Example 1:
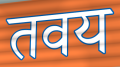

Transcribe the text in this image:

तवय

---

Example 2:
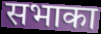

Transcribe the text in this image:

सभाका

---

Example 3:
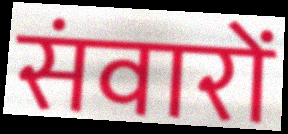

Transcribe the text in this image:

संवारों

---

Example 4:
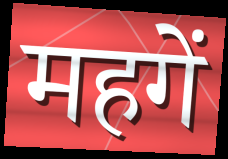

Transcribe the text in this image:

महगें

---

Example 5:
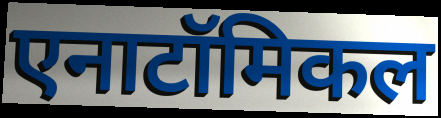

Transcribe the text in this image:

एनाटॉमिकल